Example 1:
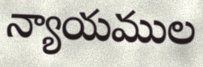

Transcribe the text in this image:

న్యాయముల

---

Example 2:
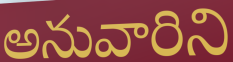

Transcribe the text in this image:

అనువారిని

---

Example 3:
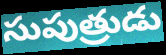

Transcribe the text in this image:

సుపుత్రుడు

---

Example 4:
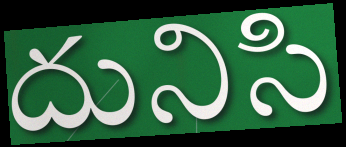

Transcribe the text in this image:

దునిసి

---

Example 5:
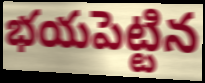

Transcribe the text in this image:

భయపెట్టిన